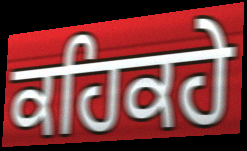
ਕਹਿਕਹੇ